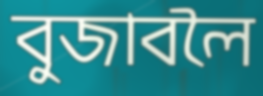
বুজাবলৈ